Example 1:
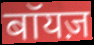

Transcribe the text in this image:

बॉयज़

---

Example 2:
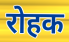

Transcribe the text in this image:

रोहक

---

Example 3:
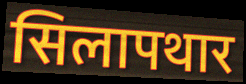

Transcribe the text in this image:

सिलापथार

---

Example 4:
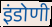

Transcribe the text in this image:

इंडोणी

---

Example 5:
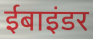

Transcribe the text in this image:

ईबाइंडर